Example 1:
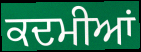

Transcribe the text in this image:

ਕਦਮੀਆਂ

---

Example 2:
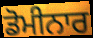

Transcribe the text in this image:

ਡੋਮੀਨਾਰ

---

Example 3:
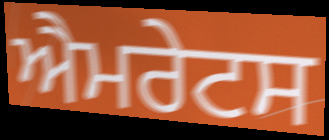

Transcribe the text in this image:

ਐਮਰੇਟਸ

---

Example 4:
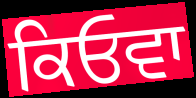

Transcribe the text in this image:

ਕਿਓਵਾ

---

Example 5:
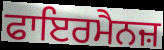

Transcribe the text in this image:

ਫਾਇਰਮੈਨਜ਼